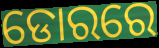
ଡୋରରେ